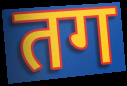
तग